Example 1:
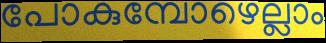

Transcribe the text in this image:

പോകുമ്പോഴെല്ലാം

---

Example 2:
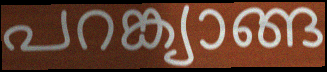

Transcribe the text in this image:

പറങ്ക്യാങ്ങ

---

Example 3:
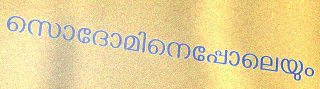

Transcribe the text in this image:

സൊദോമിനെപ്പോലെയും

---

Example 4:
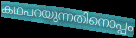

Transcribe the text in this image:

കഥപറയുന്നതിനൊപ്പം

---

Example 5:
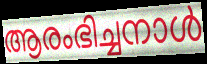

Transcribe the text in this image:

ആരംഭിച്ചനാൾ